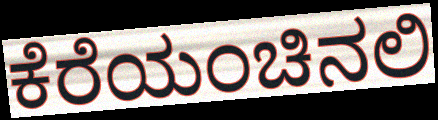
ಕೆರೆಯಂಚಿನಲಿ